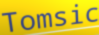
Tomsic